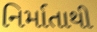
નિર્માતાથી